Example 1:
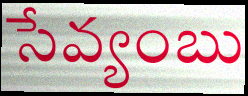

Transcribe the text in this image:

సేవ్యంబు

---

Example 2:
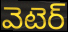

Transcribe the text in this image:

వెటెర్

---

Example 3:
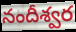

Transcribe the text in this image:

నందీశ్వర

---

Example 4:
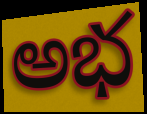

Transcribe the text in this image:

అభ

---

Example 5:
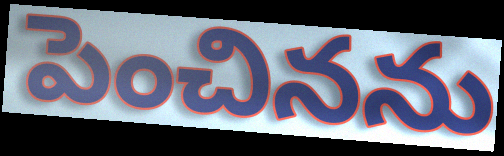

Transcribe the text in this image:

పెంచినను